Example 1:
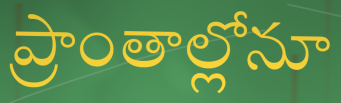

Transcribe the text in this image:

ప్రాంతాల్లోనూ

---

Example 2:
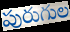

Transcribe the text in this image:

పురుగుల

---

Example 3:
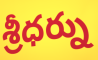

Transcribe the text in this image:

శ్రీధర్ను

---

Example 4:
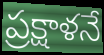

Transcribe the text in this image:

ప్రక్షాళనే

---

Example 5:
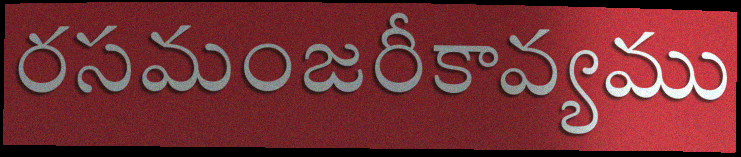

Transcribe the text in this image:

రసమంజరీకావ్యము